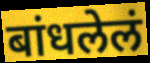
बांधलेलं